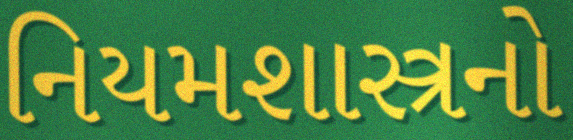
નિયમશાસ્ત્રનો